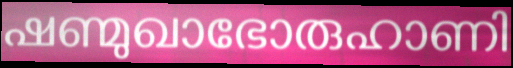
ഷണ്മുഖാഭോരുഹാണി